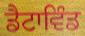
ਡੈਟਾਵਿੰਡ